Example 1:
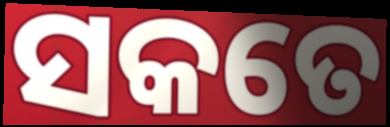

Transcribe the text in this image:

ସକତେ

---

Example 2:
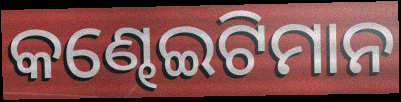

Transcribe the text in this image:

କଣ୍ଢେଇଟିମାନ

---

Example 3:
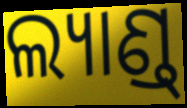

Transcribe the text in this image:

ଲ୍ୟାଣ୍ଡ୍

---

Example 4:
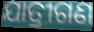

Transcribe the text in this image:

ଯାତ୍ରୀଗଣ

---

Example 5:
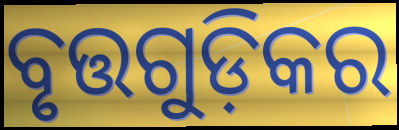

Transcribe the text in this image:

ବୃତ୍ତଗୁଡ଼ିକର